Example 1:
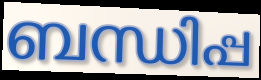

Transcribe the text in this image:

ബന്ധിപ്പ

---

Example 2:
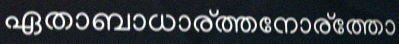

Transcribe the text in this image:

ഏതാബാധാര്ത്തനോര്ത്തോ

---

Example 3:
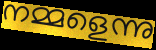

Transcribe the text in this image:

നമ്മളെന്നു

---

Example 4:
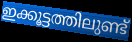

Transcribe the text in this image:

ഇക്കൂട്ടത്തിലുണ്ട്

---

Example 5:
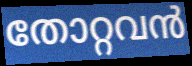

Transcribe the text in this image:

തോറ്റവൻ